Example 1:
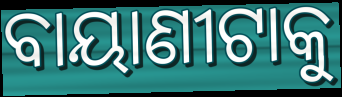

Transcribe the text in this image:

ବାୟାଣୀଟାକୁ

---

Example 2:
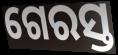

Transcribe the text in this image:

ଗେରସ୍ତ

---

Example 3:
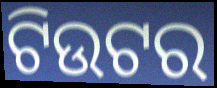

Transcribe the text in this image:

ଟିଉଟର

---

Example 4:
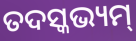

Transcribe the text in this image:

ତଦସ୍କଭ୍ୟମ୍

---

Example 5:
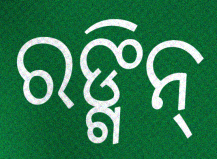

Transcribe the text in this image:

ରଙ୍ଗିନ୍